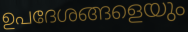
ഉപദേശങ്ങളെയും